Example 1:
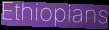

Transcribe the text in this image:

Ethiopians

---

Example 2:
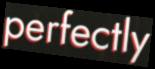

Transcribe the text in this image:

perfectly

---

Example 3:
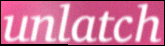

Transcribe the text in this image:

unlatch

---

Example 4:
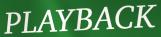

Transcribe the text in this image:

PLAYBACK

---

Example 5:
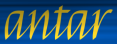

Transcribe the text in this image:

antar